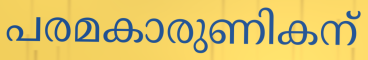
പരമകാരുണികന്